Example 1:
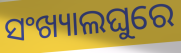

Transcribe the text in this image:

ସଂଖ୍ୟାଲଘୁରେ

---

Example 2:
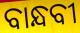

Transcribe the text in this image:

ବାନ୍ଧବୀ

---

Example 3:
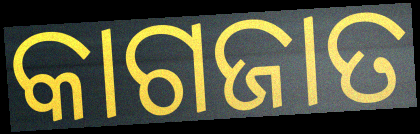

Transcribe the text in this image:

କାଗଜାତ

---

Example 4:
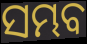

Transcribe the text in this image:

ସମ୍ଭବ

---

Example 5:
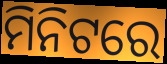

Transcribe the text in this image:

ମିନିଟରେ